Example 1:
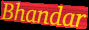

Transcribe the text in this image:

Bhandar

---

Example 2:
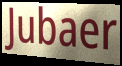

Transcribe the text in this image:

Jubaer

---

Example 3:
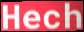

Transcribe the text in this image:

Hech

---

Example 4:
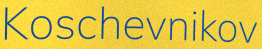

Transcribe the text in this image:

Koschevnikov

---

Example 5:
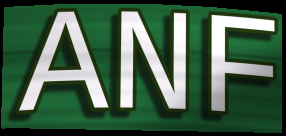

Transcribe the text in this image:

ANF